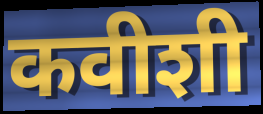
कवीशी